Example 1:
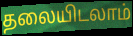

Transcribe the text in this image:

தலையிடலாம்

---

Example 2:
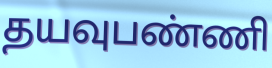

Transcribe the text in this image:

தயவுபண்ணி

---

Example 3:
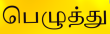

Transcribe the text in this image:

பெழுத்து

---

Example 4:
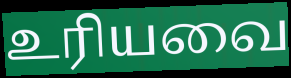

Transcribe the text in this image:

உரியவை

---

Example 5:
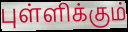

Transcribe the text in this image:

புள்ளிக்கும்